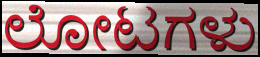
ಲೋಟಗಳು